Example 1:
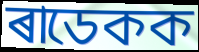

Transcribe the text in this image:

ৰাডেকক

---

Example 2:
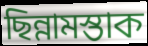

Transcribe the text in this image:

ছিন্নামস্তাক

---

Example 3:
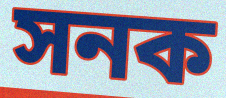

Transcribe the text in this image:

সনক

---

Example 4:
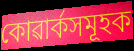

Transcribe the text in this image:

কোৱাৰ্কসমূহক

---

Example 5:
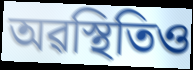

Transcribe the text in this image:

অৱস্থিতিও